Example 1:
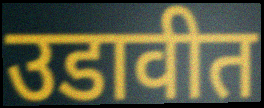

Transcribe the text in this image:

उडावीत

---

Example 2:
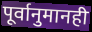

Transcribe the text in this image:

पूर्वानुमानही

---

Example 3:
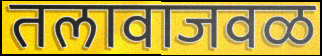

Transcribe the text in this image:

तलावाजवळ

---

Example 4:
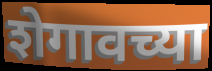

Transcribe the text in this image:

शेगावच्या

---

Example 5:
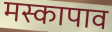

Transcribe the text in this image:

मस्कापाव